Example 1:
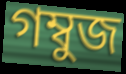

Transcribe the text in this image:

গম্বুজ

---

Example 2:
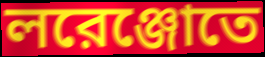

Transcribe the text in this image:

লরেঞ্জোতে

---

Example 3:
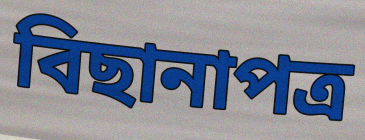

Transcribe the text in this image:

বিছানাপত্র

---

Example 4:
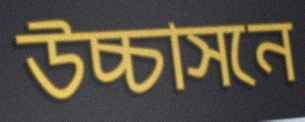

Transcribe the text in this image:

উচ্চাসনে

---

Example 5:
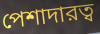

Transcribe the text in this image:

পেশাদারত্ব